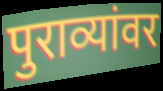
पुराव्यांवर